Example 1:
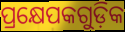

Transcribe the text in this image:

ପ୍ରକ୍ଷେପକଗୁଡ଼ିକ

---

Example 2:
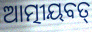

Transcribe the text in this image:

ଆତ୍ମୀୟବତ୍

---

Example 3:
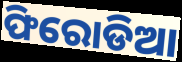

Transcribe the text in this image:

ଫିରୋଡିଆ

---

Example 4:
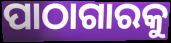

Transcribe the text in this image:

ପାଠାଗାରକୁ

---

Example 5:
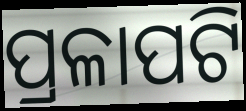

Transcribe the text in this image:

ପ୍ରଳାପଟି